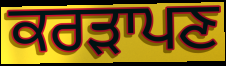
ਕਰੜਾਪਣ